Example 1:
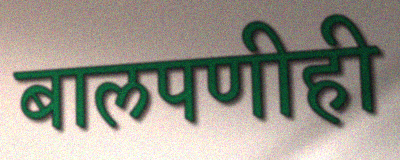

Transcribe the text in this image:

बालपणीही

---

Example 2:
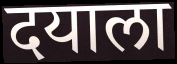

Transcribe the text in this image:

दयाला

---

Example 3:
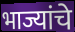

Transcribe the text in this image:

भाज्यांचे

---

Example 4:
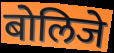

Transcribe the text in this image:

बोलिजे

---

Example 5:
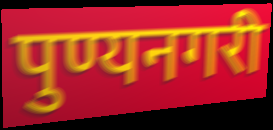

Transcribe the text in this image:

पुण्यनगरी